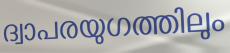
ദ്വാപരയുഗത്തിലും